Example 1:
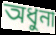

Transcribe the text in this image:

অধুনা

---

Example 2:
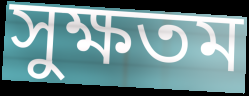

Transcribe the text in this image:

সুক্ষতম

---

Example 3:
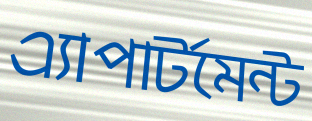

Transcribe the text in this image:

এ্যাপার্টমেন্ট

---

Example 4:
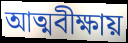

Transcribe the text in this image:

আত্মবীক্ষায়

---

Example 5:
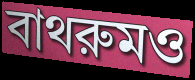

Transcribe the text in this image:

বাথরুমও